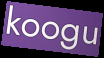
koogu